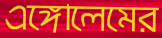
এঙ্গোলেমের